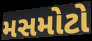
મસમોટો